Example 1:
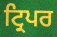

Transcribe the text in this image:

ਟ੍ਰਿਪਰ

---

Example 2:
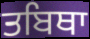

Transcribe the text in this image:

ਤਬਿਥਾ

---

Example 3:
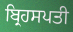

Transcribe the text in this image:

ਬ੍ਰਿਹਸਪਤੀ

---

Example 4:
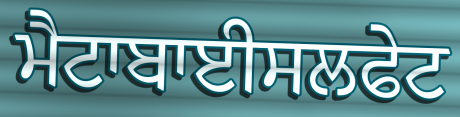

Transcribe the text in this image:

ਮੈਟਾਬਾਈਸਲਫੇਟ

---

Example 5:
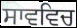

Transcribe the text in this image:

ਸਾਵਵਿਚ